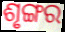
ଶୃଙ୍ଗର